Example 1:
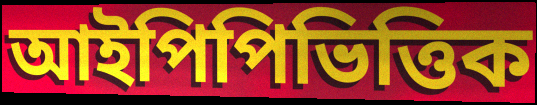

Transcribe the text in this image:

আইপিপিভিত্তিক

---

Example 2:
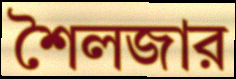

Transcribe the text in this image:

শৈলজার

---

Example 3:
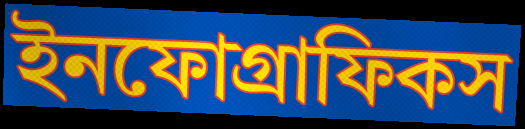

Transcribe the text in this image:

ইনফোগ্রাফিকস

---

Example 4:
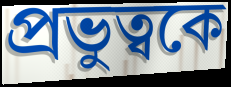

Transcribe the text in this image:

প্রভুত্বকে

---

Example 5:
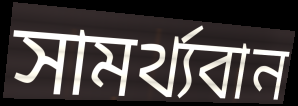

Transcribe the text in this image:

সামর্থ্যবান